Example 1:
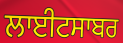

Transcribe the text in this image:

ਲਾਈਟਸਾਬਰ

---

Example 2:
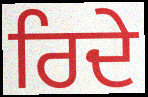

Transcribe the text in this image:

ਰਿਦੇ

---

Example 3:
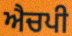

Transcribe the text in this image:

ਐਚਪੀ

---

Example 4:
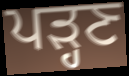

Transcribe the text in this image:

ਪੜ੍ਹਣ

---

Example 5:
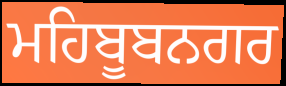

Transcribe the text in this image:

ਮਹਿਬੂਬਨਗਰ